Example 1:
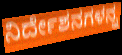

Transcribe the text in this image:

ನಿರ್ದೇಶನಗಳನ್ನ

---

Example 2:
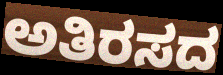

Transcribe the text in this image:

ಅತಿರಸದ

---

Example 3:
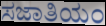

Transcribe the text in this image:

ಸಜಾತಿಯಂ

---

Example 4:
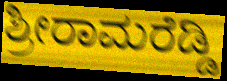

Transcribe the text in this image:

ಶ್ರೀರಾಮರೆಡ್ಡಿ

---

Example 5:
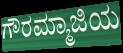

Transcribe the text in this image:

ಗೌರಮ್ಮಾಜಿಯ